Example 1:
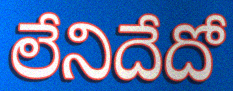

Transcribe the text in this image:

లేనిదేదో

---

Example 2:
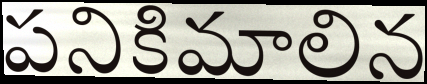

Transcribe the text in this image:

పనికిమాలిన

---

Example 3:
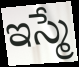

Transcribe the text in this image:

ఇస్మే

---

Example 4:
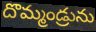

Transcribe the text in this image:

దొమ్మండ్రును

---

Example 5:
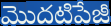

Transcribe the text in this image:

మొదటిపేజీ